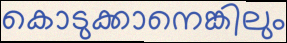
കൊടുക്കാനെങ്കിലും